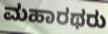
ಮಹಾರಥರು